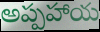
అప్పహాయ